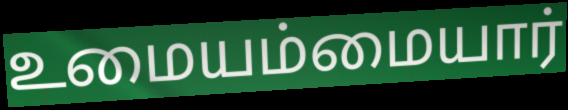
உமையம்மையார்